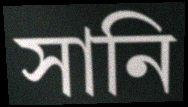
সানি